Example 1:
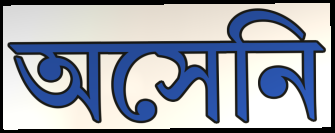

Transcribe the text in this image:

অসেনি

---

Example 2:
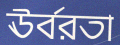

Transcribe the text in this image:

ঊর্বরতা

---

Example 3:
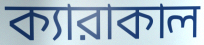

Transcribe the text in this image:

ক্যারাকাল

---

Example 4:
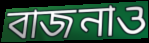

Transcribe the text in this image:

বাজনাও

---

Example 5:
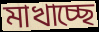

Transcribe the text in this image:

মাখাচ্ছে